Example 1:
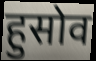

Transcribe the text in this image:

हुसोव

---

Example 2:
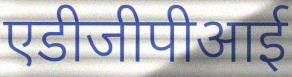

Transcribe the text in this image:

एडीजीपीआई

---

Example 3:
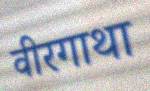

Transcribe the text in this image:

वीरगाथा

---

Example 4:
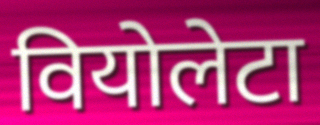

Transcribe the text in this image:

वियोलेटा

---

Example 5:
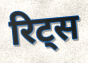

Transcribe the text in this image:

रिट्स